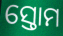
ସ୍ତୋମ